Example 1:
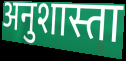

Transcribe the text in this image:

अनुशास्ता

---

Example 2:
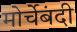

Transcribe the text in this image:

मोर्चेबंदी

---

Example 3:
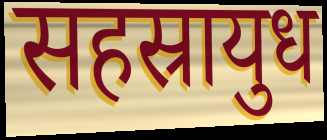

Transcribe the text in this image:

सहस्रायुध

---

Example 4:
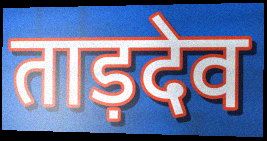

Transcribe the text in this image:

ताड़देव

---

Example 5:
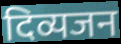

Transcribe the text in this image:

दिव्यजन